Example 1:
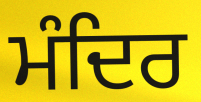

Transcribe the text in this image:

ਮੰਦਿਰ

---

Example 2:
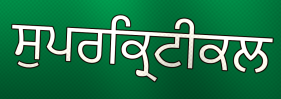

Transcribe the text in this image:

ਸੁਪਰਕ੍ਰਿਟੀਕਲ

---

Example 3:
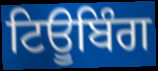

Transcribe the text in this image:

ਟਿਊਬਿੰਗ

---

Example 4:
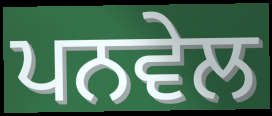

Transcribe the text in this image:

ਪਨਵੇਲ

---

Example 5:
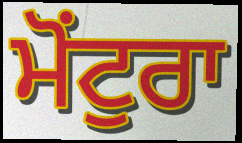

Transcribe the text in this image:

ਮੋਂਟੁਰਾ